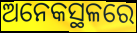
ଅନେକସ୍ଥଳରେ